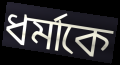
ধর্মাকে